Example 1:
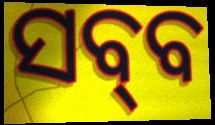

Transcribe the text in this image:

ସବ୍‌ବ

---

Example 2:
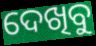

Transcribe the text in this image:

ଦେଖିବୁ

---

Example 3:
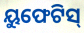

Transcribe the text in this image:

ୟୁଫେଟିସ୍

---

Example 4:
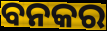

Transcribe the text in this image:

ବନକର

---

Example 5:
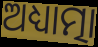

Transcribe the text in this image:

ଅଧ୍ୟାତ୍ମା